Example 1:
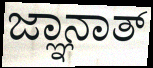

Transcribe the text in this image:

ಜ್ಞಾನಾತ್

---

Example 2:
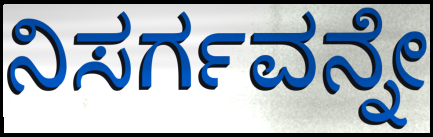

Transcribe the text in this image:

ನಿಸರ್ಗವನ್ನೇ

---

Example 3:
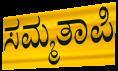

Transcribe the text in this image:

ಸಮ್ಮತಾಪಿ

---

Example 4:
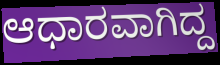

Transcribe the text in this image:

ಆಧಾರವಾಗಿದ್ದ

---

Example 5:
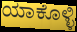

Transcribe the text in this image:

ಯಾಕೊಳ್ಳಿ